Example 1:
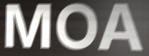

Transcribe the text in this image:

MOA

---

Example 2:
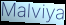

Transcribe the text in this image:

Malviya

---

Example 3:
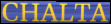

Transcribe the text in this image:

CHALTA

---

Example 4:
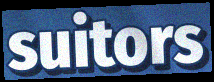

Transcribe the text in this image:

suitors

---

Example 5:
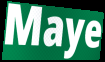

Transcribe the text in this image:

Maye